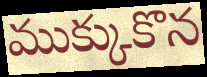
ముక్కుకొన